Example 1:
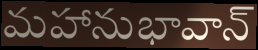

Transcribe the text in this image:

మహానుభావాన్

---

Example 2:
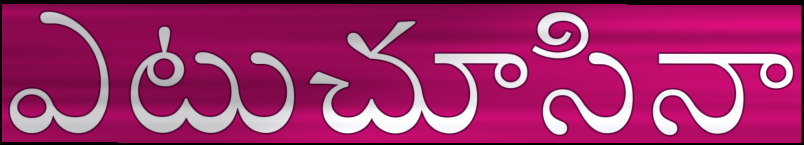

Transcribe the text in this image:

ఎటుచూసినా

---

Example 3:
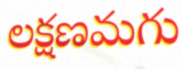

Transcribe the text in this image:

లక్షణమగు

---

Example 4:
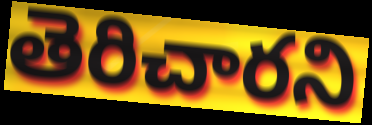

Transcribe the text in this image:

తెరిచారని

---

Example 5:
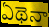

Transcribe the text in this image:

ఏథెనా